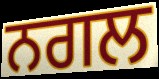
ਨਗਲ